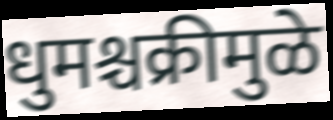
धुमश्चक्रीमुळे